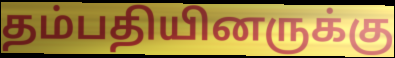
தம்பதியினருக்கு